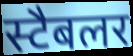
स्टैबलर